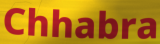
Chhabra